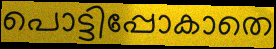
പൊട്ടിപ്പോകാതെ